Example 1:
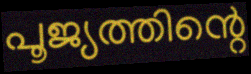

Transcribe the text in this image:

പൂജ്യത്തിന്റെ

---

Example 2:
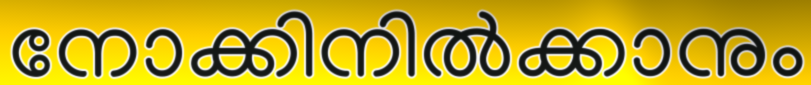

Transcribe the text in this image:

നോക്കിനിൽക്കാനും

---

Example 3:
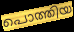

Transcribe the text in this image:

പൊത്തിയ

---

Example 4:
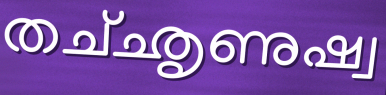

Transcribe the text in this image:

തച്ഛൃണുഷ്വ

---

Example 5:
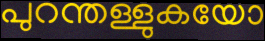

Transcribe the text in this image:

പുറന്തള്ളുകയോ